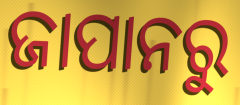
ଜାପାନରୁ